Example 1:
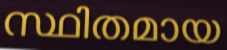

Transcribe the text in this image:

സ്ഥിതമായ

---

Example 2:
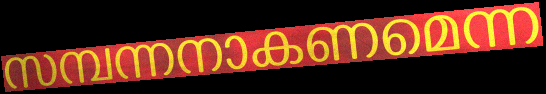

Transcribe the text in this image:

സമ്പന്നനാകണമെന്ന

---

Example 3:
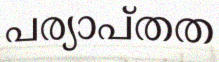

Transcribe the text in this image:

പര്യാപ്തത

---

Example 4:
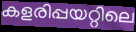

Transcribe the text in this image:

കളരിപ്പയറ്റിലെ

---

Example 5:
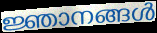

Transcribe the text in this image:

ജ്ഞാനങ്ങൾ